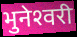
भुनेश्वरी